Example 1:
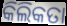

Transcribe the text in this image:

କିଲିକତା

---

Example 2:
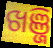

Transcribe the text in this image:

ଖଞ୍ଜି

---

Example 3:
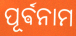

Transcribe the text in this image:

ପୂର୍ଵନାମ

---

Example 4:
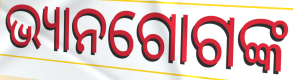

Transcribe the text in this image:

ଭ୍ୟାନଗୋଗଙ୍କ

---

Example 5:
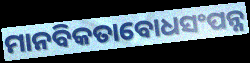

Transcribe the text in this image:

ମାନବିକତାବୋଧସଂପନ୍ନ